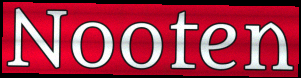
Nooten